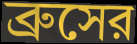
ব্রুসের